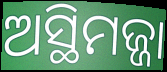
ଅସ୍ଥିମଜ୍ଜା